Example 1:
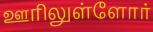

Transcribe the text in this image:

ஊரிலுள்ளோர்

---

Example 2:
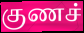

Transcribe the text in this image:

குணச்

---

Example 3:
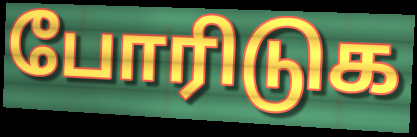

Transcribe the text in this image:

போரிடுக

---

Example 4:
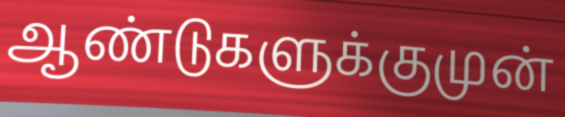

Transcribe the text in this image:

ஆண்டுகளுக்குமுன்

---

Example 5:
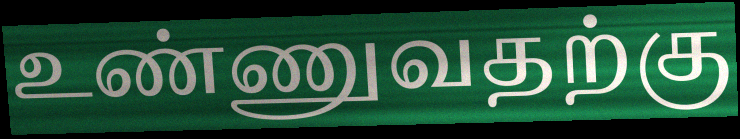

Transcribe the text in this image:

உண்ணுவதற்கு